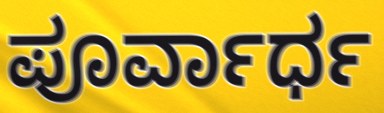
ಪೂರ್ವಾರ್ಧ